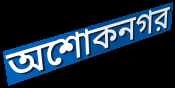
অশোকনগর